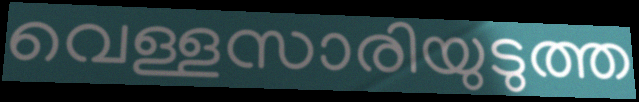
വെള്ളസാരിയുടുത്ത